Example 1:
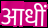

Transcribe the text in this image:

आधीं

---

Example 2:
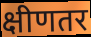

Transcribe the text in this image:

क्षीणतर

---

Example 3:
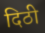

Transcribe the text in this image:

दिठी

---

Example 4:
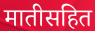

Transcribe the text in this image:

मातीसहित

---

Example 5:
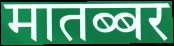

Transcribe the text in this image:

मातब्बर